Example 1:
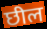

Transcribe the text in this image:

छील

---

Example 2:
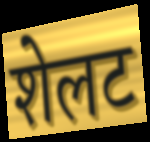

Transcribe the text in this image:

शेलट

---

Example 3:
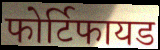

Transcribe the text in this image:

फोर्टिफायड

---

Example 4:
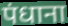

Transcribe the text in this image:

पंधाना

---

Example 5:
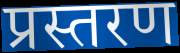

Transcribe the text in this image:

प्रस्तरण